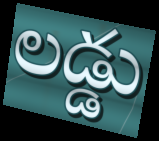
లడ్డు